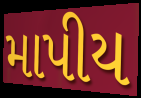
માપીય